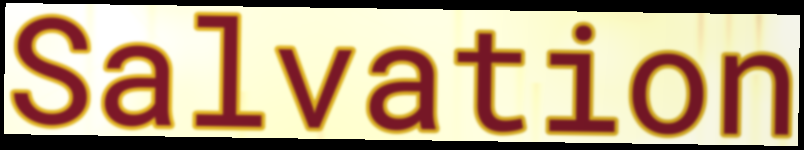
Salvation